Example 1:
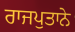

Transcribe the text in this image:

ਰਾਜਪੁਤਾਨੇ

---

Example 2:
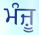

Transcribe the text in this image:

ਮੰਜ਼ੂ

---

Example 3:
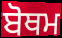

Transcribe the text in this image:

ਬੋਥਮ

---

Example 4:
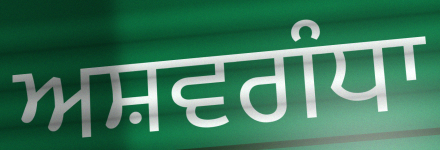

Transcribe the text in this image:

ਅਸ਼ਵਗੰਧਾ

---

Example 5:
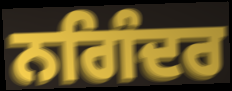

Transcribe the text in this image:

ਨਗਿੰਦਰ